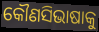
କୌଣସିଭାଷାକୁ